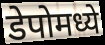
डेपोमध्ये